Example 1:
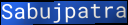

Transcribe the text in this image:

Sabujpatra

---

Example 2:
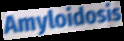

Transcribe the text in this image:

Amyloidosis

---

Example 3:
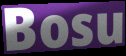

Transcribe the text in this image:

Bosu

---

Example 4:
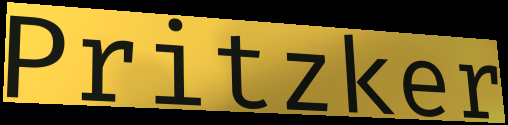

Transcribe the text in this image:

Pritzker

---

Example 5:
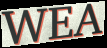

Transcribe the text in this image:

WEA